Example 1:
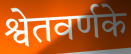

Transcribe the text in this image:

श्वेतवर्णके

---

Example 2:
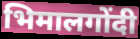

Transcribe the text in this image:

भिमालगोंदी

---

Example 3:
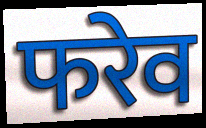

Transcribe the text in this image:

फरेव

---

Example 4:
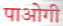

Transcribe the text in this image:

पाओगी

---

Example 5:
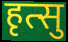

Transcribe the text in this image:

हृत्सु